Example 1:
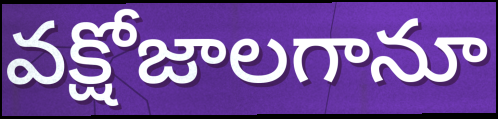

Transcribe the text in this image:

వక్షోజాలగానూ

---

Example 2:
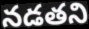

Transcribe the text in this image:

నడతని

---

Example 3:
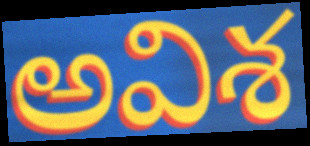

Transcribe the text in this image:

అవిశ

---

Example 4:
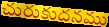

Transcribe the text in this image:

చురుకుదనము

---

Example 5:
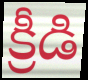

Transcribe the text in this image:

క్రీడి